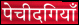
पेचीदगियाँ